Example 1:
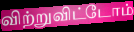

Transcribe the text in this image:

விற்றுவிட்டோம்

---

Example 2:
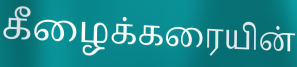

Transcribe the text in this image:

கீழைக்கரையின்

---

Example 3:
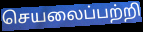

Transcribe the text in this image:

செயலைப்பற்றி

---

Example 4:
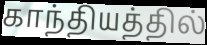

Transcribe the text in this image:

காந்தியத்தில்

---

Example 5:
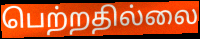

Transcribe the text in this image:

பெற்றதில்லை